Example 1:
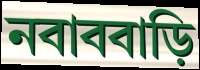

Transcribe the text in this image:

নবাববাড়ি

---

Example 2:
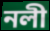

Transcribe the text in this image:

নলী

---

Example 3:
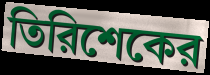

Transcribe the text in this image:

তিরিশেকের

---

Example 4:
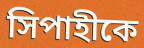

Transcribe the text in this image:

সিপাহীকে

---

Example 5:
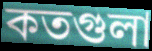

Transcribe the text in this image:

কতগুলা